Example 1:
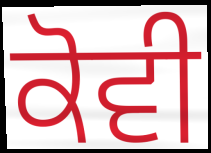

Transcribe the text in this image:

ਕੋਵੀ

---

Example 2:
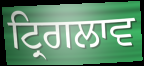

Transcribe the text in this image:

ਟ੍ਰਿਗਲਾਵ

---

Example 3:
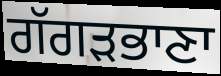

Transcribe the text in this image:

ਗੱਗੜਭਾਣਾ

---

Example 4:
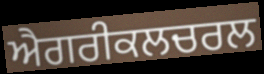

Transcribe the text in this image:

ਐਗਰੀਕਲਚਰਲ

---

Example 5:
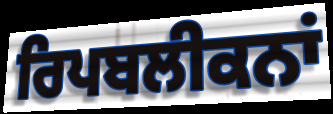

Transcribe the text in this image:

ਰਿਪਬਲੀਕਨਾਂ